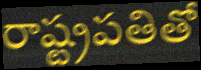
రాష్ట్రపతితో